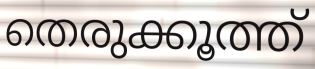
തെരുക്കൂത്ത്